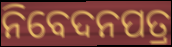
ନିବେଦନପତ୍ର